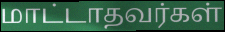
மாட்டாதவர்கள்